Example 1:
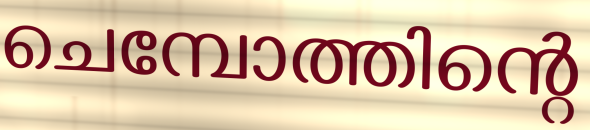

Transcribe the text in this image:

ചെമ്പോത്തിന്റെ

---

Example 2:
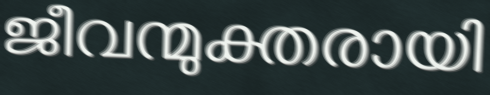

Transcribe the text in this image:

ജീവന്മുക്തരായി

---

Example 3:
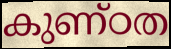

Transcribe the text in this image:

കുണ്ഠത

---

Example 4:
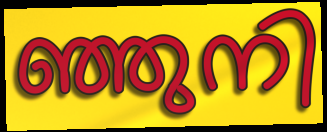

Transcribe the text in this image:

ഞ്ഞുനി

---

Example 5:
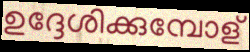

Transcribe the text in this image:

ഉദ്ദേശിക്കുമ്പോള്